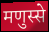
मणुस्से